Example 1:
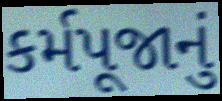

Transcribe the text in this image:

કર્મપૂજાનું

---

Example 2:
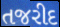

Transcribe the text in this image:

તજરીદ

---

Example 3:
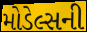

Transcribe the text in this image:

મોડેલ્સની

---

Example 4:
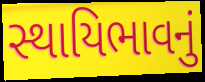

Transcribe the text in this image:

સ્થાયિભાવનું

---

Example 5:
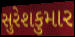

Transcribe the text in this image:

સુરેશકુમાર